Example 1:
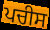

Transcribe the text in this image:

ਪਚੀਸ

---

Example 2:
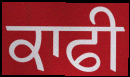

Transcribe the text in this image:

ਕਾਫੀ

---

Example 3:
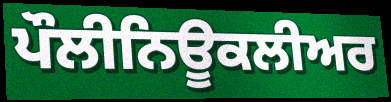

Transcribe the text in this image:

ਪੌਲੀਨਿਊਕਲੀਅਰ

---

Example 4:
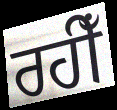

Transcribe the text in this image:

ਰਹੀਁ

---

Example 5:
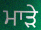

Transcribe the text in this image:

ਮਾੜੇ